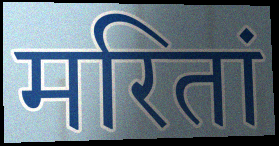
मरितां